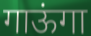
गाऊंगा